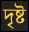
দৃষ্ট